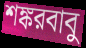
শঙ্করবাবু